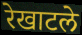
रेखाटले